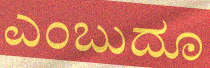
ಎಂಬುದೂ